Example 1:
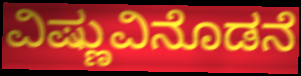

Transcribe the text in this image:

ವಿಷ್ಣುವಿನೊಡನೆ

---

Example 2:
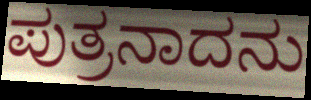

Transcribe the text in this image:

ಪುತ್ರನಾದನು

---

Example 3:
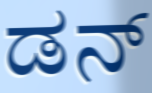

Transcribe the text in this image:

ಡನ್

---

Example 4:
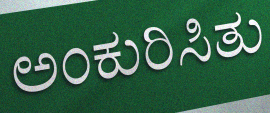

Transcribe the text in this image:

ಅಂಕುರಿಸಿತು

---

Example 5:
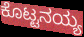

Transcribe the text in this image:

ಕೊಟ್ಟನಯ್ಯ